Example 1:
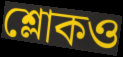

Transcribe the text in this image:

শ্লোকও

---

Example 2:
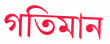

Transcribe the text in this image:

গতিমান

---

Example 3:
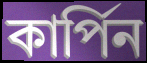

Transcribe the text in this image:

কার্পিন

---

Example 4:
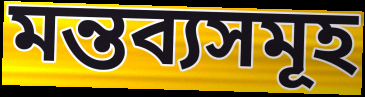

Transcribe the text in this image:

মন্তব্যসমূহ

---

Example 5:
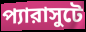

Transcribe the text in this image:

প্যারাসুটে